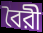
বৈরী